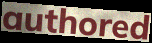
authored